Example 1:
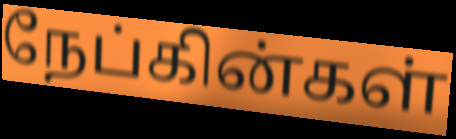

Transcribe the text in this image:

நேப்கின்கள்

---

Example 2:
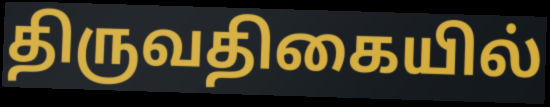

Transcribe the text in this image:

திருவதிகையில்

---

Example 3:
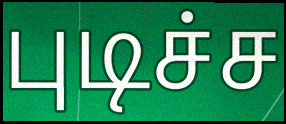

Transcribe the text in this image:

புடிச்ச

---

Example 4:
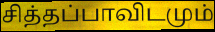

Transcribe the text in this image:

சித்தப்பாவிடமும்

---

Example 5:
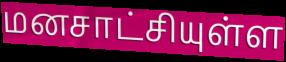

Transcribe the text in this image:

மனசாட்சியுள்ள